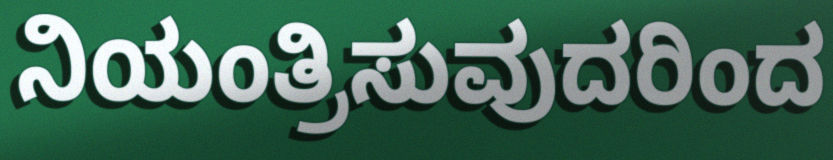
ನಿಯಂತ್ರಿಸುವುದರಿಂದ